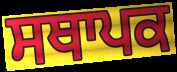
ਸਥਾਪਕ